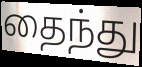
தைந்து